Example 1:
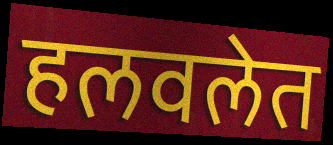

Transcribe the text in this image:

हलवलेत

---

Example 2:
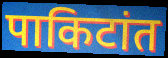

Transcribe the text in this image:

पाकिटांत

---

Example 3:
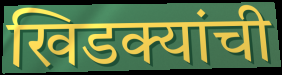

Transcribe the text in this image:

खिडक्यांची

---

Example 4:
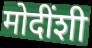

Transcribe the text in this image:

मोदींशी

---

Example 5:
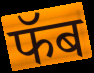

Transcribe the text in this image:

फॅब